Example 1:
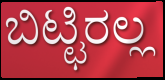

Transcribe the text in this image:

ಬಿಟ್ಟಿರಲ್ಲ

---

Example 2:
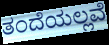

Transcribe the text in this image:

ತಂದೆಯಲ್ಲವೆ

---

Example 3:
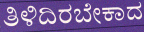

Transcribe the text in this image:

ತಿಳಿದಿರಬೇಕಾದ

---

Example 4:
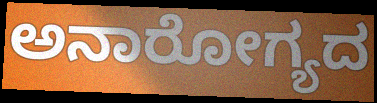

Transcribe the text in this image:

ಅನಾರೋಗ್ಯದ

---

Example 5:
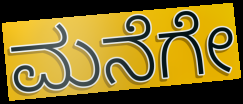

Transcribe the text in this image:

ಮನೆಗೇ